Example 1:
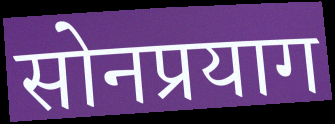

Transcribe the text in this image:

सोनप्रयाग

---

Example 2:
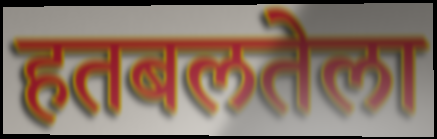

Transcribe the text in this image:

हतबलतेला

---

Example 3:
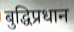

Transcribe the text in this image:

बुद्धिप्रधान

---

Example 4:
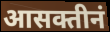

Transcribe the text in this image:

आसक्तीनं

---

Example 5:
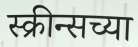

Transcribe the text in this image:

स्क्रीन्सच्या